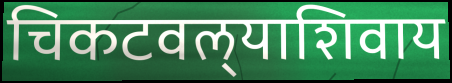
चिकटवल्याशिवाय